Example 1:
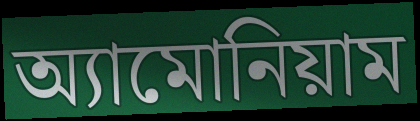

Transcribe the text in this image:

অ্যামোনিয়াম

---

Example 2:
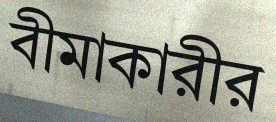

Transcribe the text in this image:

বীমাকারীর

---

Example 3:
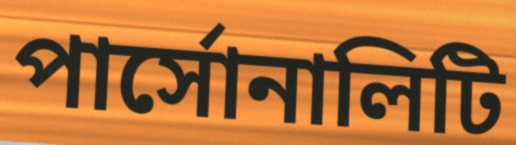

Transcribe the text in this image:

পার্সোনালিটি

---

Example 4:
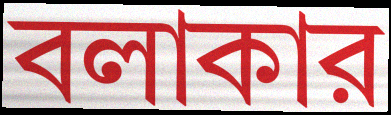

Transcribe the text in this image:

বলাকার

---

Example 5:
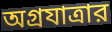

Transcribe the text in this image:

অগ্রযাত্রার